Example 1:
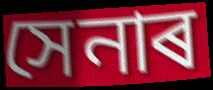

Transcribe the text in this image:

সেনাৰ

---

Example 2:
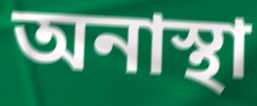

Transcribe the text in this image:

অনাস্থা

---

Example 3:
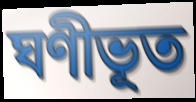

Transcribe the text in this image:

ঘণীভূত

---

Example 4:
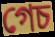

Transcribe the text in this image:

গেচ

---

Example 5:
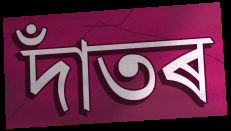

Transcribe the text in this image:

দাঁতৰ